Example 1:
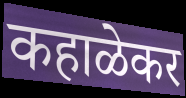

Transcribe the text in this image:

कहाळेकर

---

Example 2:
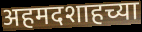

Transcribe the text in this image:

अहमदशाहच्या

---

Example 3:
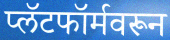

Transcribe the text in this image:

प्लॅटफॉर्मवरून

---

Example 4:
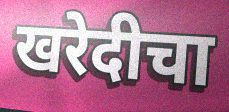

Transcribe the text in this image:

खरेदीचा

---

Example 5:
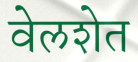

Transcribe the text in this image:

वेलशेत